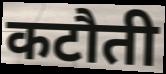
कटौती